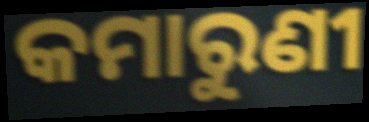
କମାରୁଣୀ